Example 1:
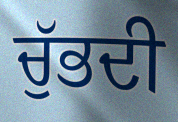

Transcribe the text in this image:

ਚੁੱਭਦੀ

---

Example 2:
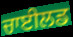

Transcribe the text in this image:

ਚਾਈਲਡ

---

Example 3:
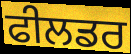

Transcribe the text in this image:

ਫੀਲਡਰ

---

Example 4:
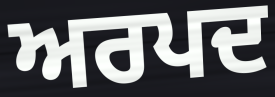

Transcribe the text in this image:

ਅਰਪਦ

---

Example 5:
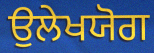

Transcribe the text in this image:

ਉਲੇਖਯੋਗ